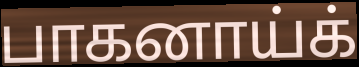
பாகனாய்க்